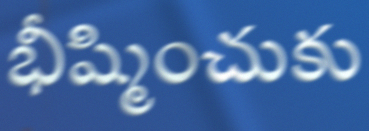
భీష్మించుకు